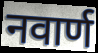
नवार्ण